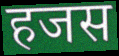
हजस